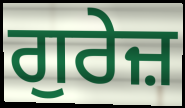
ਗੁਰੇਜ਼